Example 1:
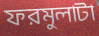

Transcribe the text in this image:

ফরমুলাটা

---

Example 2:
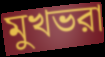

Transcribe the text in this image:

মুখভরা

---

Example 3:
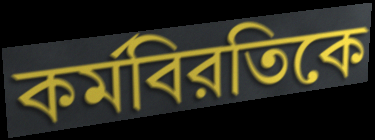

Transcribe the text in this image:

কর্মবিরতিকে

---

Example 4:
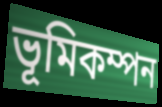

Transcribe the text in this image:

ভূমিকম্পন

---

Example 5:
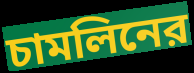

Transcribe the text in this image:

চামলিনের